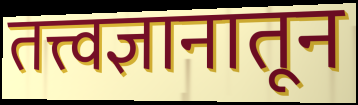
तत्त्वज्ञानातून